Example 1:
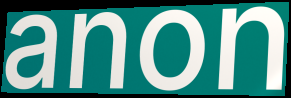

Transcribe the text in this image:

anon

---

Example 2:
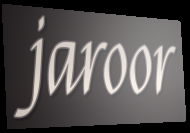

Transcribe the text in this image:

jaroor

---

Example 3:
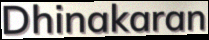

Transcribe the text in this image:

Dhinakaran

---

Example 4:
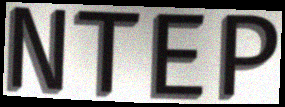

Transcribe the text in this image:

NTEP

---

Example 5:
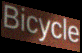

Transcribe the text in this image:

Bicycle